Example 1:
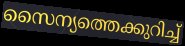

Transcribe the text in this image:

സൈന്യത്തെക്കുറിച്ച്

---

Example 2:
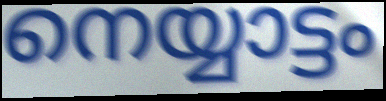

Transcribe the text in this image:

നെയ്യാട്ടം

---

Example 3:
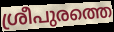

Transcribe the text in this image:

ശ്രീപുരത്തെ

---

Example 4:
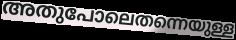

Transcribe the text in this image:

അതുപോലെതന്നെയുള്ള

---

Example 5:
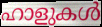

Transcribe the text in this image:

ഹാളുകൾ